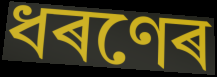
ধৰণেৰ